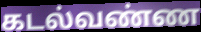
கடல்வண்ண